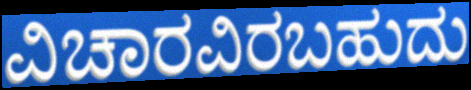
ವಿಚಾರವಿರಬಹುದು